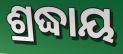
ଶ୍ରଦ୍ଧାୟ